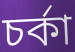
চর্কা